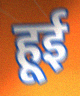
हूई